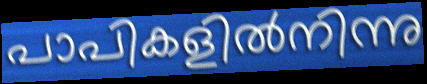
പാപികളിൽനിന്നു